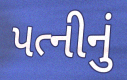
પત્નીનું